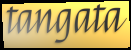
tangata